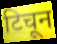
टिचून